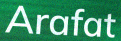
Arafat